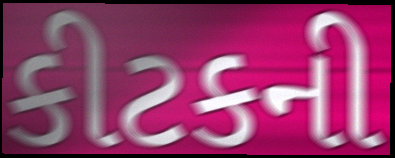
કીટકની